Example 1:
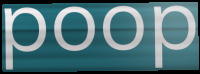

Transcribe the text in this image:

poop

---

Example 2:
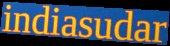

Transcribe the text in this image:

indiasudar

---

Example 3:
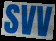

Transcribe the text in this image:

SVV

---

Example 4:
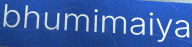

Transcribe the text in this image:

bhumimaiya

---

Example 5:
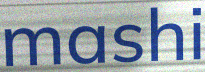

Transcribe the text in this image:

mashi